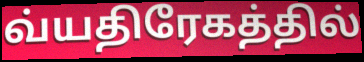
வ்யதிரேகத்தில்